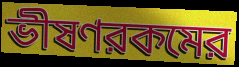
ভীষণরকমের